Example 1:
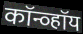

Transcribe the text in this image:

कॉन्व्हॉय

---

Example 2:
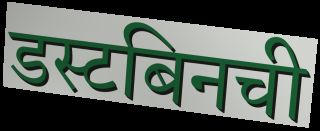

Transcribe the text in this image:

डस्टबिनची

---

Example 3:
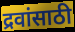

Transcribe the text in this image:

द्रवांसाठी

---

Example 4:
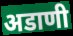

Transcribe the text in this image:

अडाणी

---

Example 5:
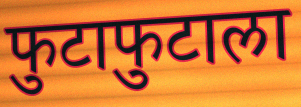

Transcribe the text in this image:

फुटाफुटाला